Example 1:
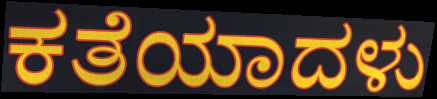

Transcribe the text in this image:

ಕತೆಯಾದಳು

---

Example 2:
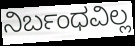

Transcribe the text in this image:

ನಿರ್ಬಂಧವಿಲ್ಲ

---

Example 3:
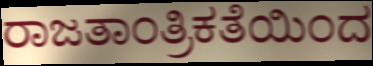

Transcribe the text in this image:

ರಾಜತಾಂತ್ರಿಕತೆಯಿಂದ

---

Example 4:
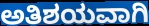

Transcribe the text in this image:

ಅತಿಶಯವಾಗಿ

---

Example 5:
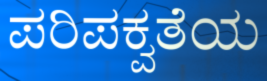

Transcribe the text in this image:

ಪರಿಪಕ್ವತೆಯ